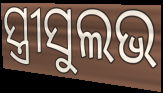
ସ୍ତ୍ରୀସୁଲଭ